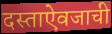
दस्ताऐवजाची